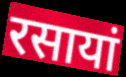
रसायां